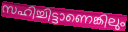
സഹിച്ചിട്ടാണെങ്കിലും